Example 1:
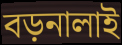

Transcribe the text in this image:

বড়নালাই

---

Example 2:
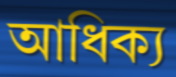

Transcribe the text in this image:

আধিক্য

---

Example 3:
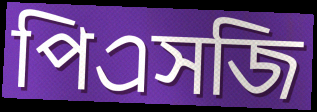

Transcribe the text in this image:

পিএসজি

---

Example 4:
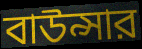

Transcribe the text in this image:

বাউন্সার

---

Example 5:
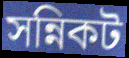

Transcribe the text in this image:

সন্নিকট